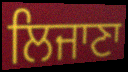
ਲਿਜਾਣਾ